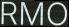
RMO